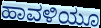
ಹಾವಳಿಯೂ